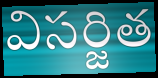
విసర్జిత